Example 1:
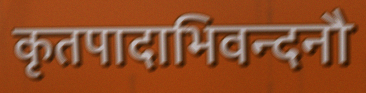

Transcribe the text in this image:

कृतपादाभिवन्दनौ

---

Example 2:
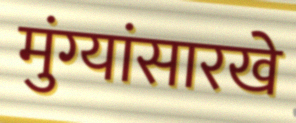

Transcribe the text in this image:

मुंग्यांसारखे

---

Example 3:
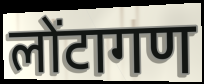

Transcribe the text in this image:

लोंटागण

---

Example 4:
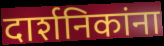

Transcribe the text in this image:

दार्शनिकांना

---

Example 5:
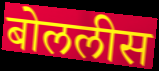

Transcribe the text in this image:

बोललीस